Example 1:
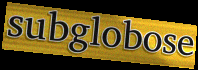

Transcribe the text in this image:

subglobose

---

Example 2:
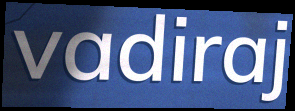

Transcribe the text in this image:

vadiraj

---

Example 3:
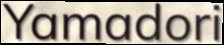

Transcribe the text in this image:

Yamadori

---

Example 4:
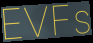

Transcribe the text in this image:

EVFs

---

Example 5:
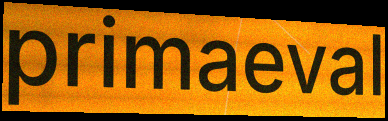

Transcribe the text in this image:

primaeval